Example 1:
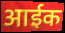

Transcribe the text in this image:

आईक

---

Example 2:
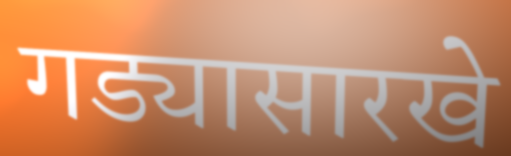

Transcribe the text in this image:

गड्यासारखे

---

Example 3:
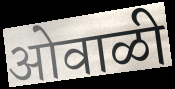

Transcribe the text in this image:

ओवाळी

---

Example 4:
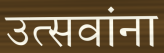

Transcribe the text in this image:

उत्सवांना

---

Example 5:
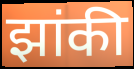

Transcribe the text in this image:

झांकी